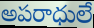
అపరాధులే